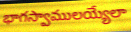
భాగస్వాములయ్యేలా